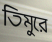
তিমুরে